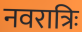
नवरात्रिः